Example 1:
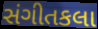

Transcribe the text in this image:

સંગીતકલા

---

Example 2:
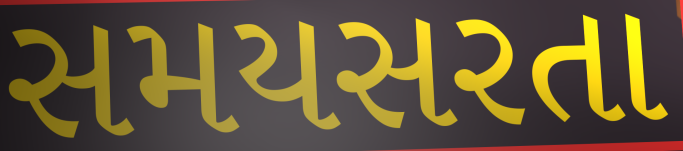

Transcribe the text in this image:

સમયસરતા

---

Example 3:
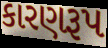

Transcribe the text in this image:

કારણરૂપ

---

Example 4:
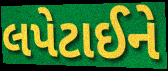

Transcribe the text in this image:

લપેટાઈને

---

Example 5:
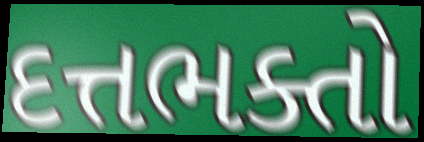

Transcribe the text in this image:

દત્તભક્તો